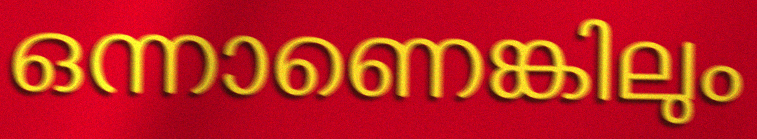
ഒന്നാണെങ്കിലും